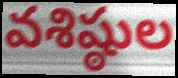
వశిష్ఠుల